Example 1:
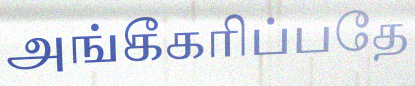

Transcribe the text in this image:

அங்கீகரிப்பதே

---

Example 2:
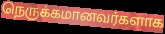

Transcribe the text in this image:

நெருக்கமானவர்களாக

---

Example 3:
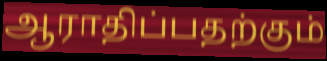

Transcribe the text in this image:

ஆராதிப்பதற்கும்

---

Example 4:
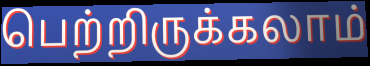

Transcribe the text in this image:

பெற்றிருக்கலாம்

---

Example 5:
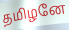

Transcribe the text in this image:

தமிழனே